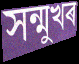
সন্মুখৰ